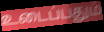
உடைப்பதும்